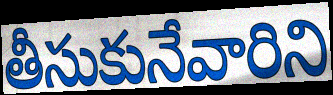
తీసుకునేవారిని